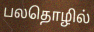
பலதொழில்